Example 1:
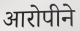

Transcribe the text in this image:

आरोपीने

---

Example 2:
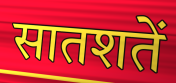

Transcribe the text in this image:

सातशतें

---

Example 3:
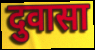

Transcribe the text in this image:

दुवासा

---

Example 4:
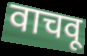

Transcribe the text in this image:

वाचवू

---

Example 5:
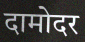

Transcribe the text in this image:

दामोदर